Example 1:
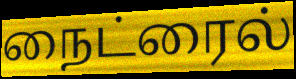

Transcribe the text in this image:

நைட்ரைல்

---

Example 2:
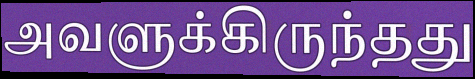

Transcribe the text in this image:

அவளுக்கிருந்தது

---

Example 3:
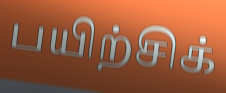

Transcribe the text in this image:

பயிற்சிக்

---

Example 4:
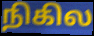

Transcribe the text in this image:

நிகில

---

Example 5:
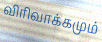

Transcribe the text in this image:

விரிவாக்கமும்